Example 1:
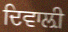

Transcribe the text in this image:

ਦਿਵਾਲ਼ੀ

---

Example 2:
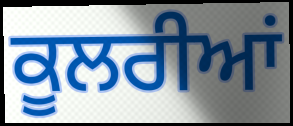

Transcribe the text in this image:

ਕੂਲਰੀਆਂ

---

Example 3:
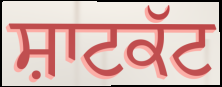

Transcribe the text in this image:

ਸ਼ਾਟਕੱਟ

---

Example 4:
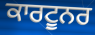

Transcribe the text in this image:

ਕਾਰਟੂਨਰ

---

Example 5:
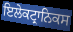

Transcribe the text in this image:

ਇਲੇਕਟ੍ਰਾਨਿਕਸ